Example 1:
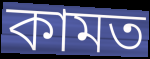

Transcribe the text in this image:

কামত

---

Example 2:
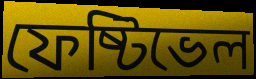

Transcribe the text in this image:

ফেষ্টিভেল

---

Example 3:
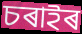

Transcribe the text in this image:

চৰাইৰ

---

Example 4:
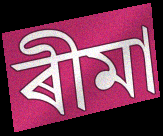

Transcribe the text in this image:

ৰীমা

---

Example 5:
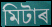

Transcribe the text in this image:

মিটাৰ